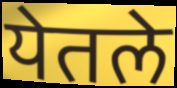
येतले